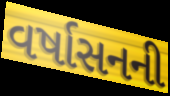
વર્ષાસનની